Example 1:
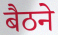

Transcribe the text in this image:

बैठने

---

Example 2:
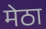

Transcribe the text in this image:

मेठा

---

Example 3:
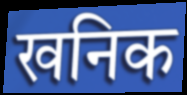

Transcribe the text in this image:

खनिक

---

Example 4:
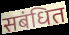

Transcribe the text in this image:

सबंधित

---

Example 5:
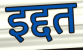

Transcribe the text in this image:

इद्दत